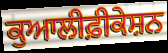
ਕੁਆਲੀਫ਼ੀਕੇਸ਼ਨ